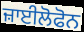
ਜ਼ਾਈਲੋਫੋਨ